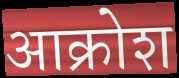
आक्रोश